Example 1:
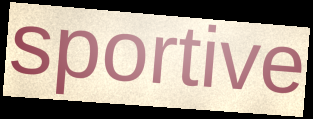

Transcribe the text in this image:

sportive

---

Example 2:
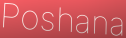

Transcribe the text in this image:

Poshana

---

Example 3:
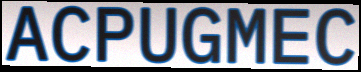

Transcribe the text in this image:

ACPUGMEC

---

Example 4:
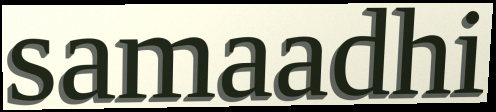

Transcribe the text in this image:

samaadhi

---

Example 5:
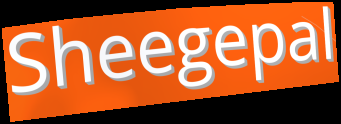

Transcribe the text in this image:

Sheegepal